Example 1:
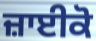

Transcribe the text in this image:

ਜ਼ਾਈਕੋ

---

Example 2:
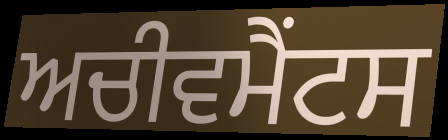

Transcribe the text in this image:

ਅਚੀਵਮੈਂਟਸ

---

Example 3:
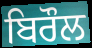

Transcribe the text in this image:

ਬਿਰੌਲ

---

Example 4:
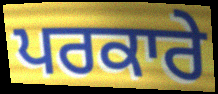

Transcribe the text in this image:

ਪਰਕਾਰੇ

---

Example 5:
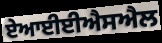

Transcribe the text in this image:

ਏਆਈਈਐਸਐਲ